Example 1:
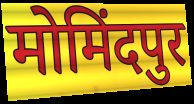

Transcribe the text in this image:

मोमिंदपुर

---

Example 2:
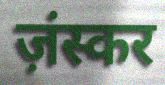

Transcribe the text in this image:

ज़ंस्कर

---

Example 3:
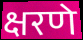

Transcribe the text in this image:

क्षरणे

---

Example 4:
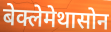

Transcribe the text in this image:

बेक्लेमेथासोन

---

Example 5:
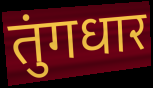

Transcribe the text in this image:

तुंगधार